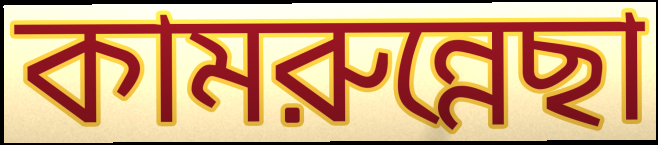
কামরুন্নেছা